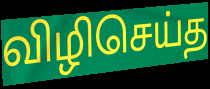
விழிசெய்த